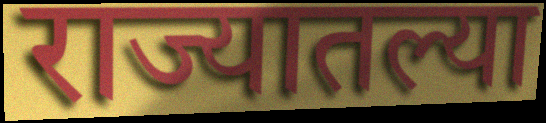
राज्यातल्या